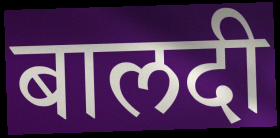
बालदी